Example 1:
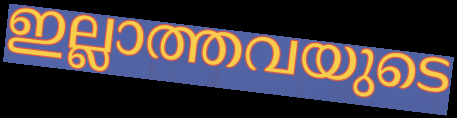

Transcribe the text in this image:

ഇല്ലാത്തവയുടെ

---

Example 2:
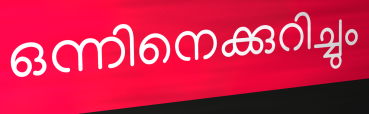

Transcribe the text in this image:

ഒന്നിനെക്കുറിച്ചും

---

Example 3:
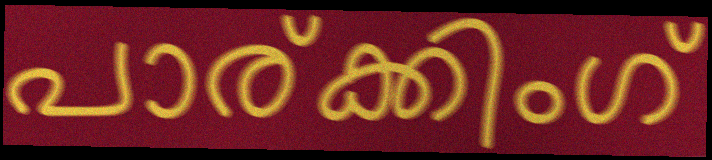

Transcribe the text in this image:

പാര്ക്കിംഗ്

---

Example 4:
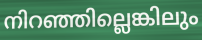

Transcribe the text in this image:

നിറഞ്ഞില്ലെങ്കിലും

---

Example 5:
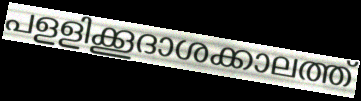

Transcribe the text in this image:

പളളിക്കൂദാശക്കാലത്ത്